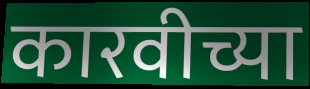
कारवीच्या